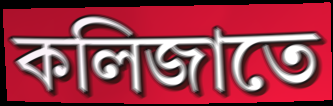
কলিজাতে